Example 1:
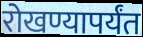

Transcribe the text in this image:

रोखण्यापर्यंत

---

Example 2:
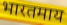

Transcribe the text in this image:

भारतमाय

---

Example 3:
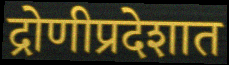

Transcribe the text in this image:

द्रोणीप्रदेशात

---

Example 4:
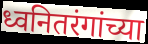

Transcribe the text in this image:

ध्वनितरंगांच्या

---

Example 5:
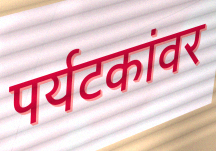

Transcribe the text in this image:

पर्यटकांवर